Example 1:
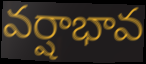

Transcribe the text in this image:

వర్షాభావ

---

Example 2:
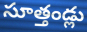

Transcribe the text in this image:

సూత్తండ్లు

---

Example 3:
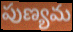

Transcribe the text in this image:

పుణ్యమ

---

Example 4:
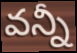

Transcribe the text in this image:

వన్నీ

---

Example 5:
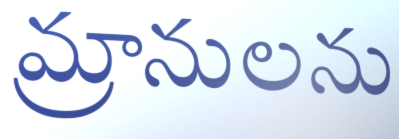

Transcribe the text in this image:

మ్రానులను